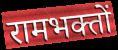
रामभक्तों